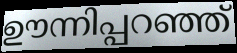
ഊന്നിപ്പറഞ്ഞ്